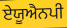
ਏਯੂਐਨਪੀ